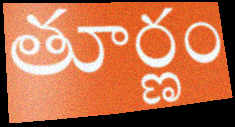
తూర్ణం